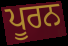
ਪੂਰਨ